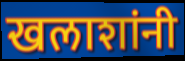
खलाशांनी